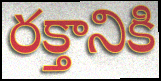
రక్తానికి